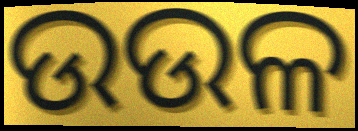
ଉଉଳ